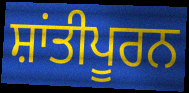
ਸ਼ਾਂਤੀਪੂਰਨ